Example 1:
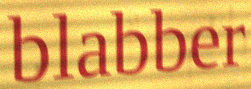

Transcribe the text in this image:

blabber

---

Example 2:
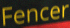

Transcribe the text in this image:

Fencer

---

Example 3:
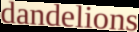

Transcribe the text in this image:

dandelions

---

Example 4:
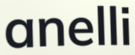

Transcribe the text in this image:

anelli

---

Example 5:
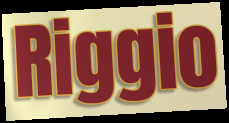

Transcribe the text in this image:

Riggio